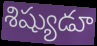
శిష్యుడూ